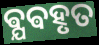
ଵ୍ଯଵହୃତ